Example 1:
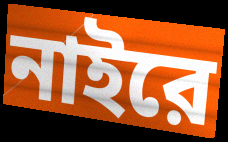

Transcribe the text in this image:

নাইরে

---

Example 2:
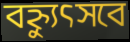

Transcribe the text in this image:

বহ্ন্যুৎসবে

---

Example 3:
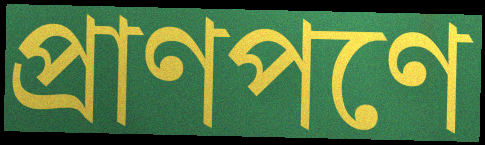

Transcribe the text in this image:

প্রাণপণে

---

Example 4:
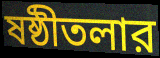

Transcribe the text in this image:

ষষ্ঠীতলার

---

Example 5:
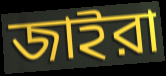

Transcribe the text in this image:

জাইরা